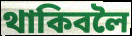
থাকিবলৈ